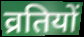
व्रतियों